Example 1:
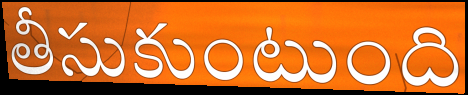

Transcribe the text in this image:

తీసుకుంటుంది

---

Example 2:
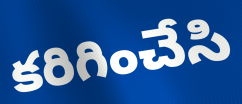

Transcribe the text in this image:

కరిగించేసి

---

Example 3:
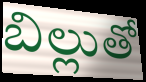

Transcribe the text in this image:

బిల్లుతో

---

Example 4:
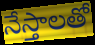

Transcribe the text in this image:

నేస్తాలతో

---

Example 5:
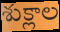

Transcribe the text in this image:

శుక్లాల